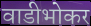
वाडीभोकर